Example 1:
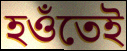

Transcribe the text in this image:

হওঁতেই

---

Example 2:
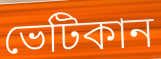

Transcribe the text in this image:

ভেটিকান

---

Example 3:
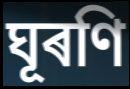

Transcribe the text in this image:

ঘূৰণি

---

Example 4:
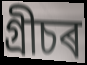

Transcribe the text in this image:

গ্ৰীচৰ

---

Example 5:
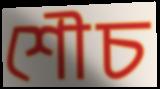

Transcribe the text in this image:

শৌচ